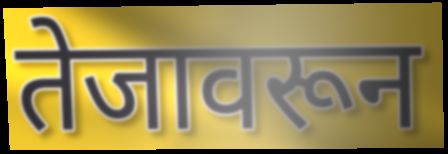
तेजावरून